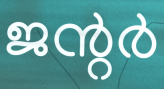
ജന്റർ